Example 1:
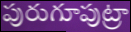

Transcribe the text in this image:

పురుగూపుట్రా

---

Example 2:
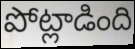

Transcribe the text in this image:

పోట్లాడింది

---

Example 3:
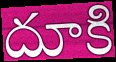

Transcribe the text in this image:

దూకి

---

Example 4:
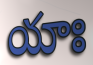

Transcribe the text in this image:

యాః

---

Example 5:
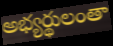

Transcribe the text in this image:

అభ్యర్థులంతా